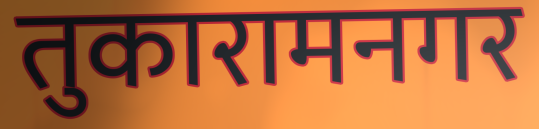
तुकारामनगर